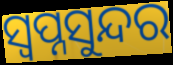
ସ୍ୱପ୍ନସୁନ୍ଦର